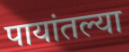
पायांतल्या